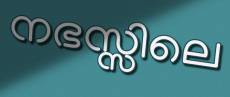
നഭസ്സിലെ